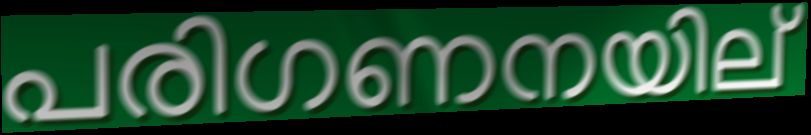
പരിഗണനയില്